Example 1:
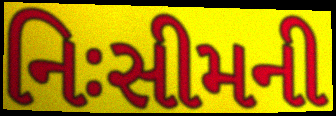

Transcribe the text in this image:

નિઃસીમની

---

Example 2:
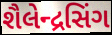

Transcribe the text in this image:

શૈલેન્દ્રસિંગ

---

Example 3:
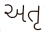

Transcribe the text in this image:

અતૃ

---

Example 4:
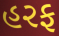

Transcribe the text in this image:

હરફ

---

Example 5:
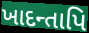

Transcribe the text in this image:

ખાદન્તાપિ